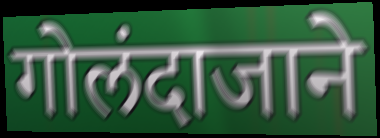
गोलंदाजाने